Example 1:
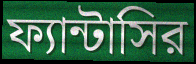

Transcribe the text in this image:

ফ্যান্টাসির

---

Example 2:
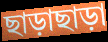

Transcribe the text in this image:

ছাড়াছাড়া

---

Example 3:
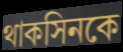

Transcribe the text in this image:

থাকসিনকে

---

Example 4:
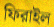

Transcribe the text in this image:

ফিরাইল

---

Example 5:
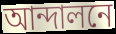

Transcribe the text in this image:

আন্দালনে